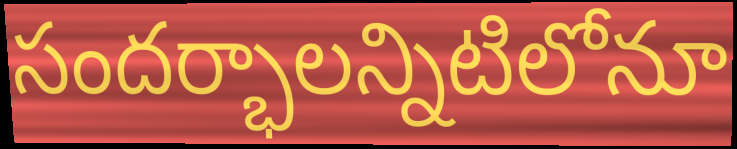
సందర్భాలన్నిటిలోనూ